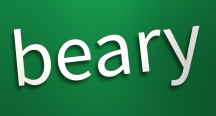
beary